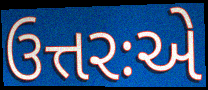
ઉત્તરઃએ